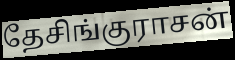
தேசிங்குராசன்